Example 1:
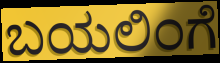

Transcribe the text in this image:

ಬಯಲಿಂಗೆ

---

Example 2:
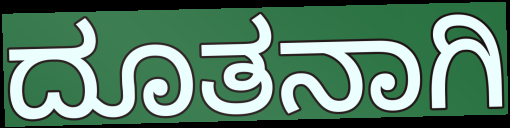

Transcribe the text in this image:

ದೂತನಾಗಿ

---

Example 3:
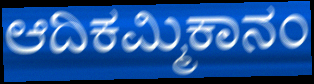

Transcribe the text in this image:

ಆದಿಕಮ್ಮಿಕಾನಂ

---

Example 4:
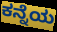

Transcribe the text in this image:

ಕನ್ನೆಯ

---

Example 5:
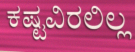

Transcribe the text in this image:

ಕಷ್ಟವಿರಲಿಲ್ಲ